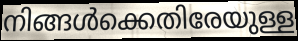
നിങ്ങൾക്കെതിരേയുള്ള